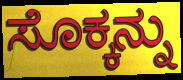
ಸೊಕ್ಕನ್ನು